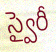
స్వైరీ